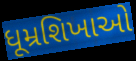
ધૂમ્રશિખાઓ